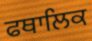
ਫਥਾਲਿਕ